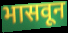
भासवून